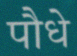
पौधे